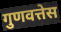
गुणवत्तेस